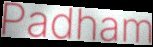
Padham